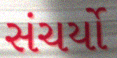
સંચર્યો